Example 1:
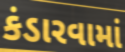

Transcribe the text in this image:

કંડારવામાં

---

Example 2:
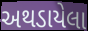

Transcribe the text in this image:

અથડાયેલા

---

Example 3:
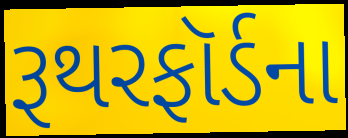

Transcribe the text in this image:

રૂથરફૉર્ડના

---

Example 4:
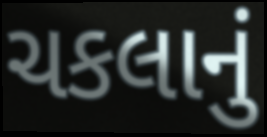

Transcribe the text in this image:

ચકલાનું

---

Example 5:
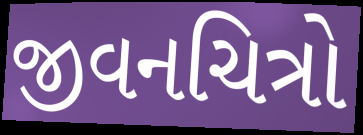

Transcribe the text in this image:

જીવનચિત્રો